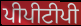
ਪੀਪੀਟੀਪੀ